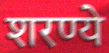
शरण्ये